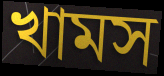
খামস